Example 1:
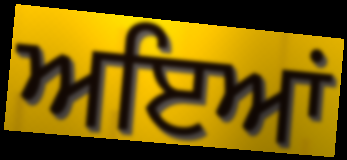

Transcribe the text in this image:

ਅਇਆਂ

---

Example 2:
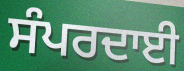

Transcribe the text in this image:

ਸੰਪਰਦਾਈ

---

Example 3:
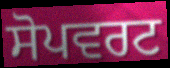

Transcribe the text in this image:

ਸੋਪਵਰਟ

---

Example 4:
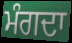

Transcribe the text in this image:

ਮੰਗਦਾ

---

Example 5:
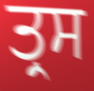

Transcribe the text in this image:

ਤ੍ਰਸ